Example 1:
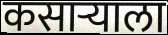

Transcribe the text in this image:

कसाऱ्याला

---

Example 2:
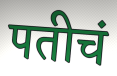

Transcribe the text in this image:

पतीचं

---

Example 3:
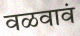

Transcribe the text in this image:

वळवावं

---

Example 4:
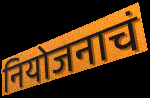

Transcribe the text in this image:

नियोजनाचं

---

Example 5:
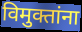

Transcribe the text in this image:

विमुक्तांना